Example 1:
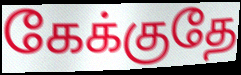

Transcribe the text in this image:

கேக்குதே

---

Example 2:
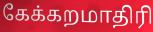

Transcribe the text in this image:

கேக்கறமாதிரி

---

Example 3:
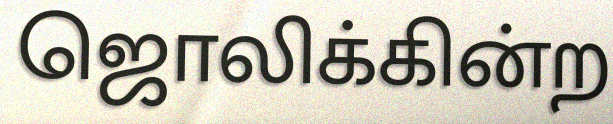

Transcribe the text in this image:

ஜொலிக்கின்ற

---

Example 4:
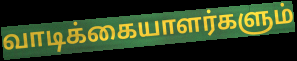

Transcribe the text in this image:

வாடிக்கையாளர்களும்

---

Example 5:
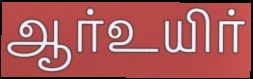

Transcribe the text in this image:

ஆர்உயிர்